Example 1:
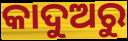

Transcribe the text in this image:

କାଦୁଅରୁ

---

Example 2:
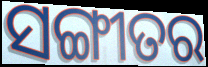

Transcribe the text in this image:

ସଙ୍ଗୀତର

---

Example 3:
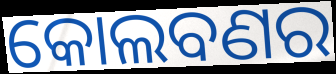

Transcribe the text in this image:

କୋଲବଣର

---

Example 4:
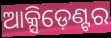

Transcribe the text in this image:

ଆକ୍ସିଡ଼େଣ୍ଟର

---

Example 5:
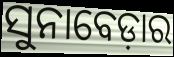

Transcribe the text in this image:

ସୁନାବେଡ଼ାର